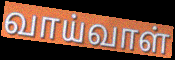
வாய்வாள்